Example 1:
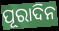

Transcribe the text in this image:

ପୂରାଦିନ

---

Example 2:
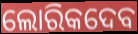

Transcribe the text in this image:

ଲୋରିକଦେବ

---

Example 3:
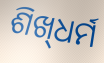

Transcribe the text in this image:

ଶିଖ୍‌ଧର୍ମ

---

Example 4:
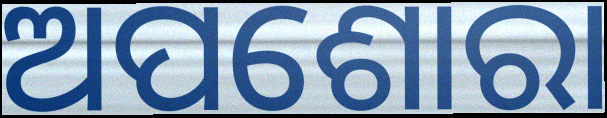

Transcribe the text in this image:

ଅପଶୋରା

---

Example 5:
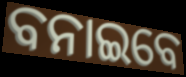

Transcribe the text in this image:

ବନାଇବେ